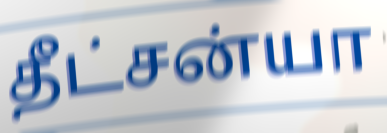
தீட்சன்யா